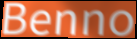
Benno